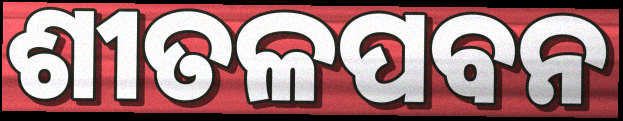
ଶୀତଳପବନ